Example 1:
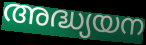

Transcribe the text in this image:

അദ്ധ്യയന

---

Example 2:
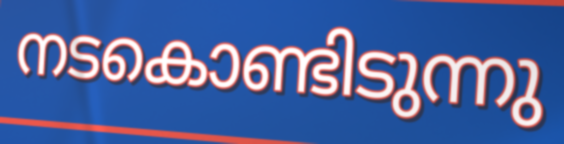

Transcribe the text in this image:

നടകൊണ്ടിടുന്നു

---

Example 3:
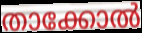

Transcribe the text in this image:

താക്കോൽ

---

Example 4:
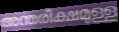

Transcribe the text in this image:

അന്തരീക്ഷമുള്ള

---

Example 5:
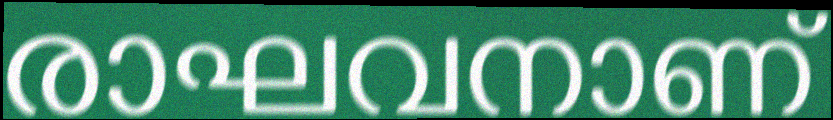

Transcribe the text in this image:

രാഘവനാണ്